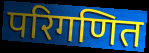
परिगणित